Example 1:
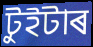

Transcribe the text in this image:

টুইটাৰ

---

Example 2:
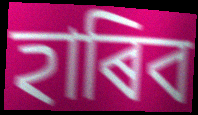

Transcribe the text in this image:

হাৰিব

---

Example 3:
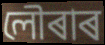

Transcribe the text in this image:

লৌৰাৰ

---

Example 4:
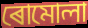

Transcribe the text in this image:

ৰোমোলা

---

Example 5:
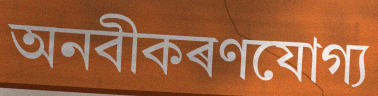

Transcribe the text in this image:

অনবীকৰণযোগ্য